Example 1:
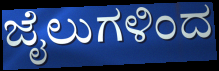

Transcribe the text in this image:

ಜೈಲುಗಳಿಂದ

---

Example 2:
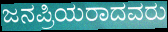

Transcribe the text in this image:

ಜನಪ್ರಿಯರಾದವರು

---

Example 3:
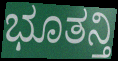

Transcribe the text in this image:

ಭೂತನ್ತಿ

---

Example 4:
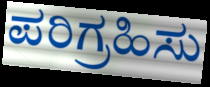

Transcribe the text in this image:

ಪರಿಗ್ರಹಿಸು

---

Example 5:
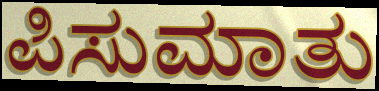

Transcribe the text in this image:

ಪಿಸುಮಾತು